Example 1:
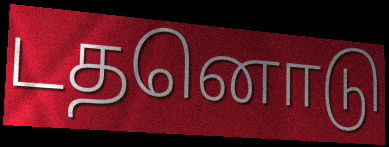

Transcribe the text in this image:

டதனொடு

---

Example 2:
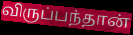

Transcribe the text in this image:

விருப்பந்தான்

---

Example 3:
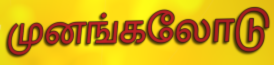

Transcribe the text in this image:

முனங்கலோடு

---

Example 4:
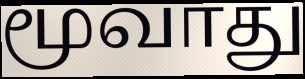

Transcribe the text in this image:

மூவாது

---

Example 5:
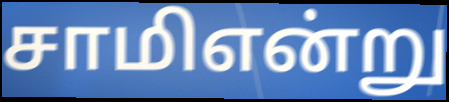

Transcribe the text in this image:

சாமிஎன்று